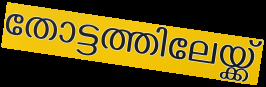
തോട്ടത്തിലേയ്ക്ക്